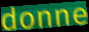
donne